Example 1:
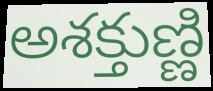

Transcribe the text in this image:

అశక్తుణ్ణి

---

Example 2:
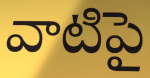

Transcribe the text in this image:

వాటిపై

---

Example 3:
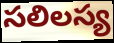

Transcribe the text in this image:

సలిలస్య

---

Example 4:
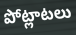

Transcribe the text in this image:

పోట్లాటలు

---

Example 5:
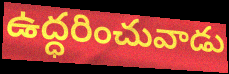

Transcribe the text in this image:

ఉద్ధరించువాడు